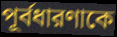
পূর্বধারণাকে